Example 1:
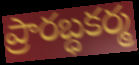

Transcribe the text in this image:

ప్రారబ్ధకర్మ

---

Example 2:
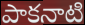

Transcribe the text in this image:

పాకనాటి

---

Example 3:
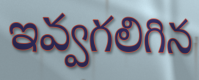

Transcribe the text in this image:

ఇవ్వగలిగిన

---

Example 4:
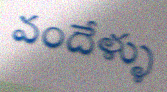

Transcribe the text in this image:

వందేళ్ళు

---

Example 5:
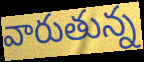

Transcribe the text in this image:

వారుతున్న